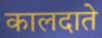
कालदाते